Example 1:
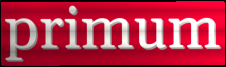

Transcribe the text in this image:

primum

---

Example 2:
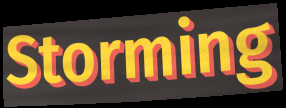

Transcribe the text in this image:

Storming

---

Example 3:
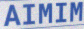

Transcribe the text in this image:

AIMIM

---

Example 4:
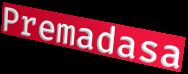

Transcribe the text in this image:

Premadasa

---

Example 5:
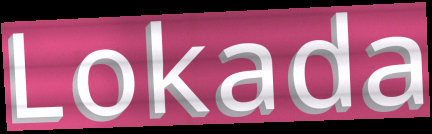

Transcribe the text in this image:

Lokada